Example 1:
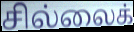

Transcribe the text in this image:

சில்லைக்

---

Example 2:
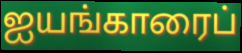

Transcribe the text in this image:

ஐயங்காரைப்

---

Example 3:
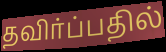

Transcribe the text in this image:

தவிர்ப்பதில்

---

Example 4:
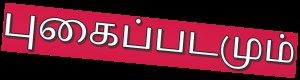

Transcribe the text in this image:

புகைப்படமும்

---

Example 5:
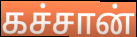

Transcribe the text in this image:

கச்சான்